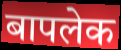
बापलेक